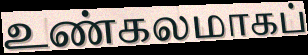
உண்கலமாகப்